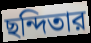
ছন্দিতার